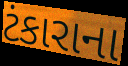
ટંકારાના